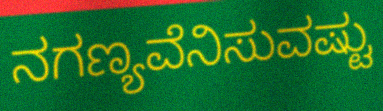
ನಗಣ್ಯವೆನಿಸುವಷ್ಟು